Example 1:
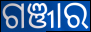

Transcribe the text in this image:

ଗଞ୍ଜାର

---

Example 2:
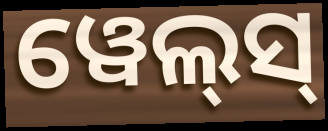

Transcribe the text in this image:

ୱେଲ୍‌ସ୍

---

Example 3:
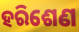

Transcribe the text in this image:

ହରିଶେଣ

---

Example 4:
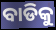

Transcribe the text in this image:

ବାଡିକୁ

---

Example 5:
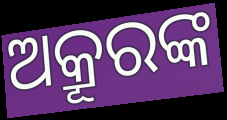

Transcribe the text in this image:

ଅକ୍ରୂରଙ୍କ